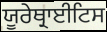
ਯੂਰੇਥ੍ਰਾਈਟਿਸ